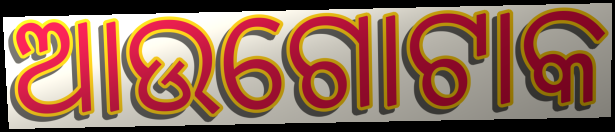
ଆଉଗୋଟାକ